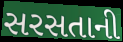
સરસતાની